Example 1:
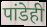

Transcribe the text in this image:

पांडेही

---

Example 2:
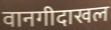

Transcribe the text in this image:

वानगीदाखल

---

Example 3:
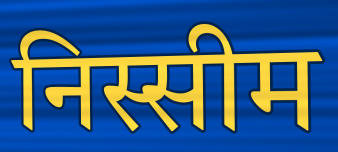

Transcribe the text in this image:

निस्सीम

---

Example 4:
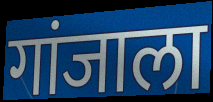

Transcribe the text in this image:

गांजाला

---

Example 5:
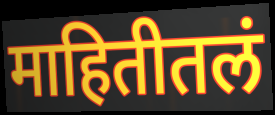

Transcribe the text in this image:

माहितीतलं